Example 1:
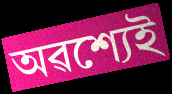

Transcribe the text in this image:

অৱশ্যেই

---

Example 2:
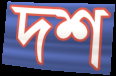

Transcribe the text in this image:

দশ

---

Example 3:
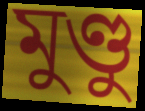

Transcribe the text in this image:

মুণ্ডু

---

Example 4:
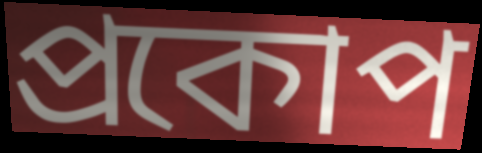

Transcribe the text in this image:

প্ৰকোপ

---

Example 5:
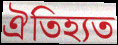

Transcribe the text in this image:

ঐতিহ্যত